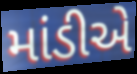
માંડીએ